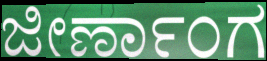
ಜೀರ್ಣಾಂಗ